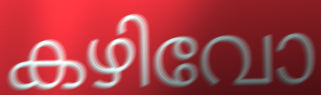
കഴിവോ